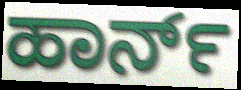
ಹಾರ್ನ್